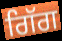
ਗਿੱਗ